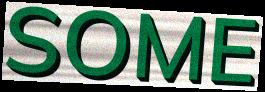
SOME